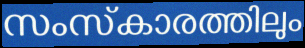
സംസ്‌കാരത്തിലും